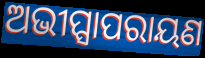
ଅଭୀପ୍ସାପରାୟଣ